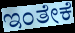
ಇಂತೇಕೆ